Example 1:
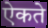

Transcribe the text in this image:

ऐकते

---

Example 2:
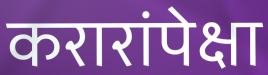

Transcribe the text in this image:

करारांपेक्षा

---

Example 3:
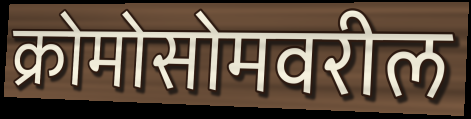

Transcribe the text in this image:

क्रोमोसोमवरील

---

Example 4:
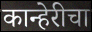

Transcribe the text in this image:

कान्हेरीचा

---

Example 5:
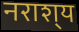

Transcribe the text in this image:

नराश्य